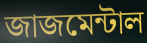
জাজমেন্টাল